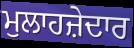
ਮੁਲਾਹਜ਼ੇਦਾਰ